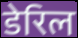
डेरिल